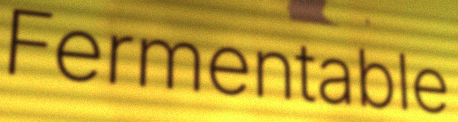
Fermentable